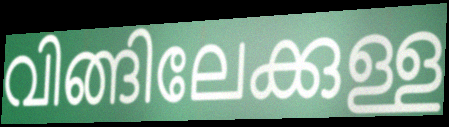
വിങ്ങിലേക്കുള്ള